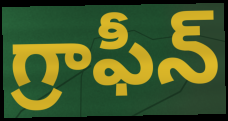
గ్రాఫీన్